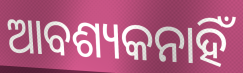
ଆବଶ୍ୟକନାହିଁ